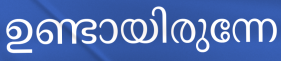
ഉണ്ടായിരുന്നേ